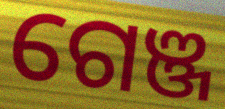
ଗେଞ୍ଜ